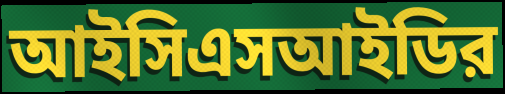
আইসিএসআইডির